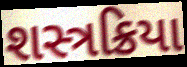
શસ્ત્રક્રિયા